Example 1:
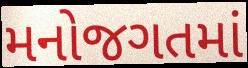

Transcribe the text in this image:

મનોજગતમાં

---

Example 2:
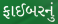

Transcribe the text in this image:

ફાઈબરનું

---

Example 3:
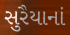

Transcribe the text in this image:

સુરૈયાનાં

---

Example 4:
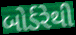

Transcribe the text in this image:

બોર્ડરેથી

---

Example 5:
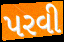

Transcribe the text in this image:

પરવી